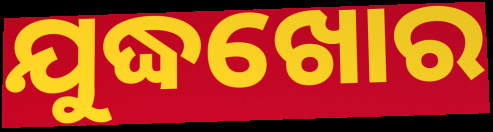
ଯୁଦ୍ଧଖୋର